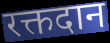
रक्तदान